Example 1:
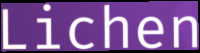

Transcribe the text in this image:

Lichen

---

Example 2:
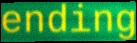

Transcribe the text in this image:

ending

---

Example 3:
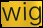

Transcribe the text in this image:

wig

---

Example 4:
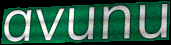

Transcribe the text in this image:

avunu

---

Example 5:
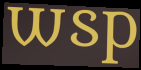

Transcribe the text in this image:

wsp